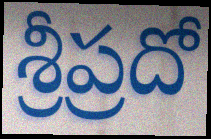
శ్రీప్రదో